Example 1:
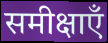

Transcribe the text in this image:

समीक्षाएँ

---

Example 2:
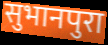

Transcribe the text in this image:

सुभानपुरा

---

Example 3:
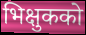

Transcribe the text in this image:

भिक्षुकको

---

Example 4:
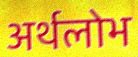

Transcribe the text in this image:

अर्थलोभ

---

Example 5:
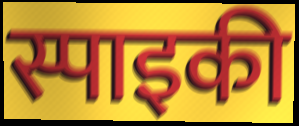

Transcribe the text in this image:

स्पाइकी